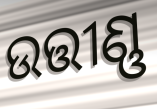
ଉତ୍ତୀଣ୍ଣ